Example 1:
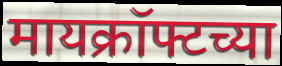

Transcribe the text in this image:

मायक्रॉफ्टच्या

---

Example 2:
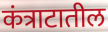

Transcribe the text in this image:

कंत्राटातील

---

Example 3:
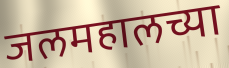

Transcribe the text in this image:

जलमहालच्या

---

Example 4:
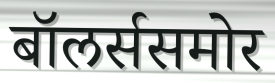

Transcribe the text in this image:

बॉलर्ससमोर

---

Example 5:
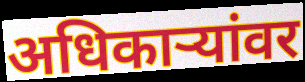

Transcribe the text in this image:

अधिकाऱ्यांवर